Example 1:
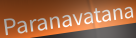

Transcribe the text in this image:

Paranavatana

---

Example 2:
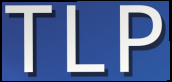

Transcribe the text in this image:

TLP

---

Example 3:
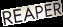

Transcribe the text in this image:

REAPER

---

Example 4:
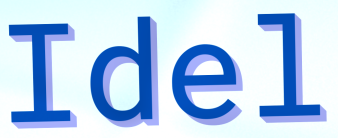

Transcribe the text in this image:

Idel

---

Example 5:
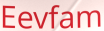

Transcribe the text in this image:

Eevfam